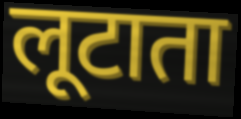
लूटाता